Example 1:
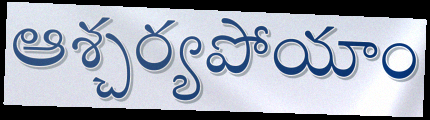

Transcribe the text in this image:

ఆశ్చర్యపోయాం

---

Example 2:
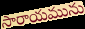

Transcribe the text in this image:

సారాయమును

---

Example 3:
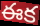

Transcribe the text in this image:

ఈక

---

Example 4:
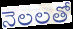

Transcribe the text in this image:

నెలలతో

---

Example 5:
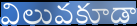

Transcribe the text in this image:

విలువకూడా